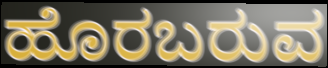
ಹೊರಬರುವ